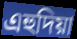
এহুদিয়া